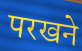
परखने